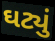
ઘટ્યું